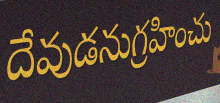
దేవుడనుగ్రహించు